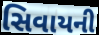
સિવાયની